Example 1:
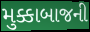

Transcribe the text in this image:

મુક્કાબાજની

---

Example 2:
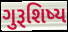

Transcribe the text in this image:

ગુરૂશિષ્ય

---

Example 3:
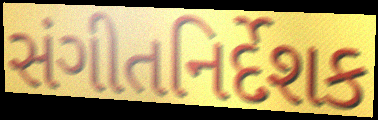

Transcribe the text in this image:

સંગીતનિર્દેશક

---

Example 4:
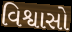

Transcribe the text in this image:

વિશ્વાસો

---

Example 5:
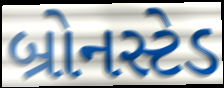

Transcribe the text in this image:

બ્રોનસ્ટેડ